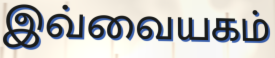
இவ்வையகம்